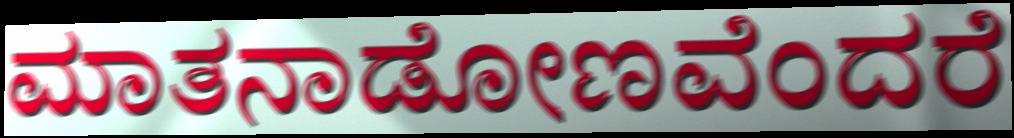
ಮಾತನಾಡೋಣವೆಂದರೆ